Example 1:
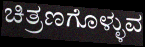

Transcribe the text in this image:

ಚಿತ್ರಣಗೊಳ್ಳುವ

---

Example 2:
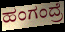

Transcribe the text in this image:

ಹಂಗಂದ್ರೆ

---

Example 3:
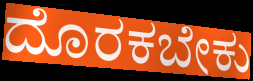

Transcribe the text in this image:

ದೊರಕಬೇಕು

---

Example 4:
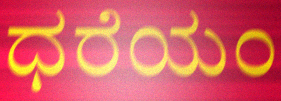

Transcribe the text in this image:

ಧರೆಯಂ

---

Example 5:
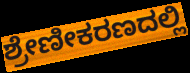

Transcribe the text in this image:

ಶ್ರೇಣೀಕರಣದಲ್ಲಿ